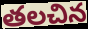
తలచిన